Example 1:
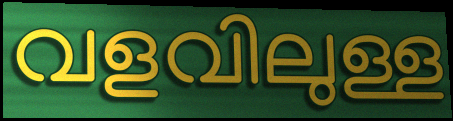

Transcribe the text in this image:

വളവിലുള്ള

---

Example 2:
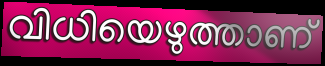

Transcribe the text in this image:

വിധിയെഴുത്താണ്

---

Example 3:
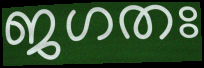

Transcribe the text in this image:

ജഗതഃ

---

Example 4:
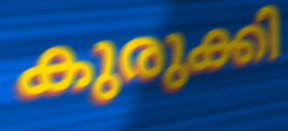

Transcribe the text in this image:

കുരുക്കി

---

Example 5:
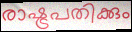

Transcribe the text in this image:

രാഷ്ട്രപതിക്കും